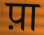
प़ा